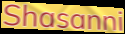
Shasanni